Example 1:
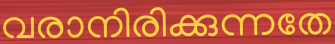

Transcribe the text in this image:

വരാനിരിക്കുന്നതേ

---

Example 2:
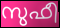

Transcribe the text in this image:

സുഫീ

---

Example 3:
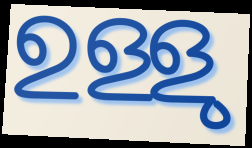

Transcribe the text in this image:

ഉള്ളു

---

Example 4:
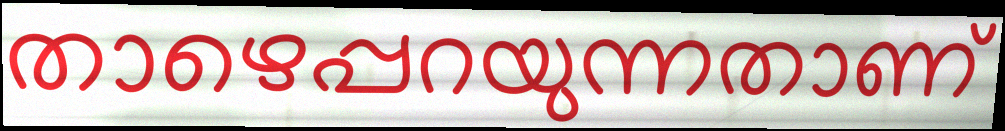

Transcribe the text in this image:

താഴെപ്പറയുന്നതാണ്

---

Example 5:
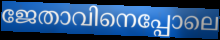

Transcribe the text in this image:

ജേതാവിനെപ്പോലെ